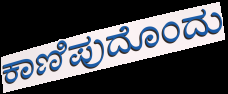
ಕಾಣಿಪುದೊಂದು